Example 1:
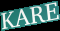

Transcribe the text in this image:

KARE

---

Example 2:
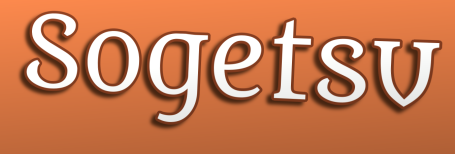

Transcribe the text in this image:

Sogetsu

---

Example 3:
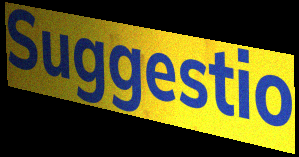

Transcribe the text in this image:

Suggestio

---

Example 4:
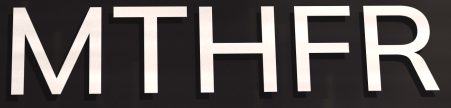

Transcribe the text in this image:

MTHFR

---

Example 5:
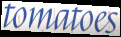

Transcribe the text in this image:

tomatoes